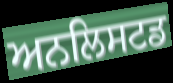
ਅਨਲਿਸਟਡ